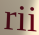
rii